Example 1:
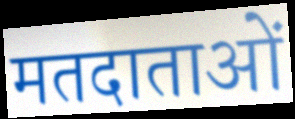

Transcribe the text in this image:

मतदाताओें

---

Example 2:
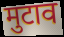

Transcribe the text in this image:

मुटाव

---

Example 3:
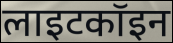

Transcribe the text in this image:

लाइटकॉइन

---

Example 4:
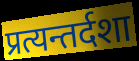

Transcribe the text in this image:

प्रत्यन्तर्दशा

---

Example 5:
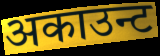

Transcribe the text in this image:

अकाउन्ट